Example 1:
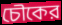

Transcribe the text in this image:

চৌকের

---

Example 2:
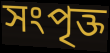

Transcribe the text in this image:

সংপৃক্ত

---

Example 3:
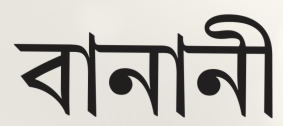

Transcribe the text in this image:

বানানী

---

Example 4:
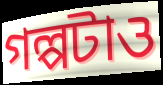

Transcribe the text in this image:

গল্পটাও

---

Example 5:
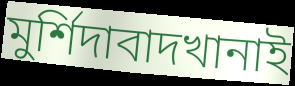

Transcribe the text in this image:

মুর্শিদাবাদখানাই